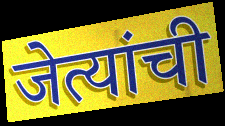
जेत्यांची